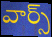
వార్స్